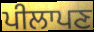
ਪੀਲਾਪਣ